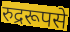
रुद्ररूपसे